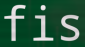
fis